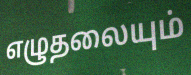
எழுதலையும்